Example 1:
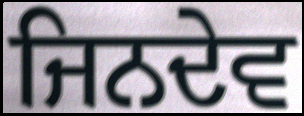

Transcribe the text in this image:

ਜਿਨਦੇਵ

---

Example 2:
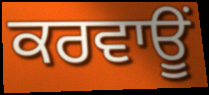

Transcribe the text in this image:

ਕਰਵਾਊਂ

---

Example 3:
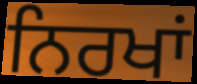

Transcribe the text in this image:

ਨਿਰਖਾਂ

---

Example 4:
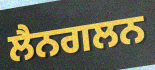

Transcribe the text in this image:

ਲੈਨਗਲਨ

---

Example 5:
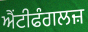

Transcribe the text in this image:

ਐਂਟੀਫੰਗਲਜ਼